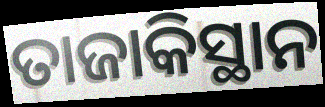
ତାଜାକିସ୍ଥାନ